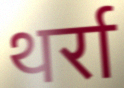
थर्रा